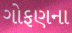
ગોફણના